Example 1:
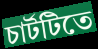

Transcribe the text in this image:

চার্টটিতে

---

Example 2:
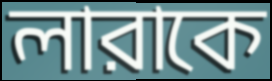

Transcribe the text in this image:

লারাকে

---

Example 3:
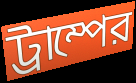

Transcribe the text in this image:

ট্রাম্পের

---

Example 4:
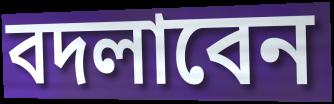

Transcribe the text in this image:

বদলাবেন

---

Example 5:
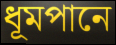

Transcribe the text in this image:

ধূমপানে